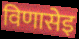
विणासेइ